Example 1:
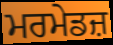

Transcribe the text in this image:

ਮਰਮੇਡਜ਼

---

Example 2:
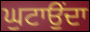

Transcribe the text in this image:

ਘੁਟਾਉਂਦਾ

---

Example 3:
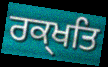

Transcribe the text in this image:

ਰਕ੍ਖਤਿ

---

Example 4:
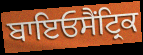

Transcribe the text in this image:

ਬਾਇਓਸੈਂਟ੍ਰਿਕ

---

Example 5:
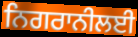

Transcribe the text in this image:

ਨਿਗਰਾਨੀਲਈ